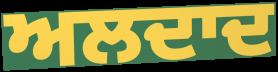
ਅਲਦਾਦ